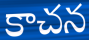
కాచన